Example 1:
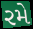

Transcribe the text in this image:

રમે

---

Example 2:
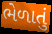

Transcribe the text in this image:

ભેળાતું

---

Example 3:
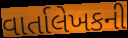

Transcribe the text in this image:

વાર્તાલેખકની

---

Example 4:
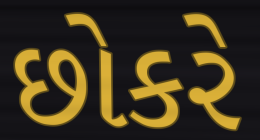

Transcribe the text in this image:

છોકરે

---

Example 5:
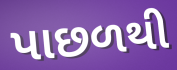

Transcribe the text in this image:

પાછળથી